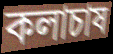
কলাচাষ